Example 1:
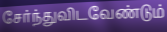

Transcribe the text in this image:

சேர்ந்துவிடவேண்டும்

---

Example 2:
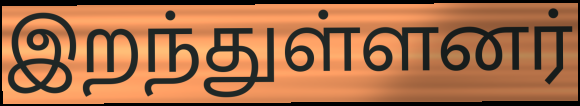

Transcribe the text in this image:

இறந்துள்ளனர்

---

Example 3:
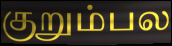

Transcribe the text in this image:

குறும்பல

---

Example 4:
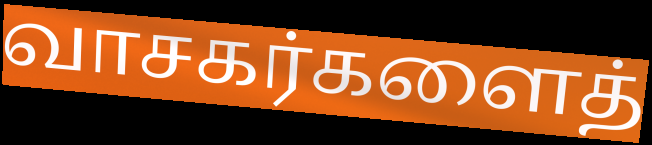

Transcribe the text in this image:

வாசகர்களைத்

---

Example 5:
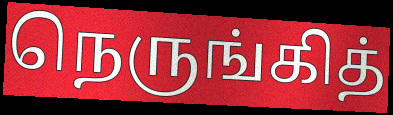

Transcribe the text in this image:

நெருங்கித்